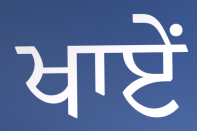
ਖਾਏਂ